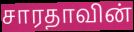
சாரதாவின்